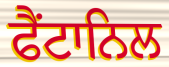
ਫੈਂਟਾਨਿਲ